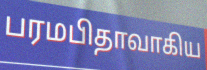
பரமபிதாவாகிய